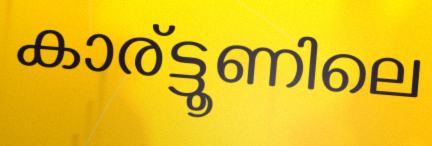
കാര്ട്ടൂണിലെ